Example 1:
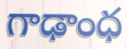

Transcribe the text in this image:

గాఢాంధ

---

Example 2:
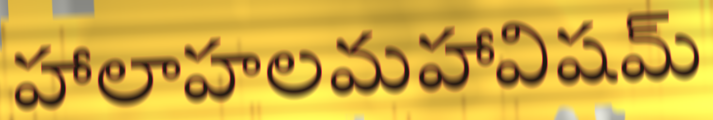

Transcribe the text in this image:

హాలాహలమహావిషమ్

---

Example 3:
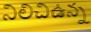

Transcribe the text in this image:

నిలిచిఉన్న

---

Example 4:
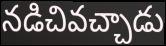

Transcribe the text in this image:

నడిచివచ్చాడు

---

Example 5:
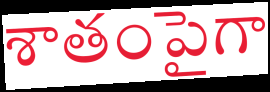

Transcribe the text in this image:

శాతంపైగా